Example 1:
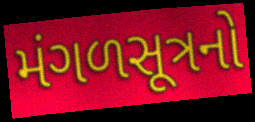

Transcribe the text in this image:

મંગળસૂત્રનો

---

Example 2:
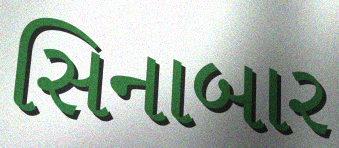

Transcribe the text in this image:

સિનાબાર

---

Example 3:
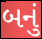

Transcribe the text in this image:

બનું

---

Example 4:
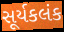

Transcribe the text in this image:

સૂર્યકલંક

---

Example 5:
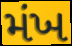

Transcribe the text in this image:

મંખ